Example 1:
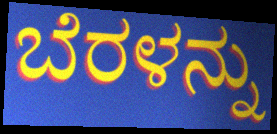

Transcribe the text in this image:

ಬೆರಳನ್ನು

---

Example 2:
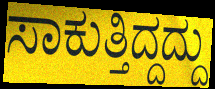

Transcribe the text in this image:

ಸಾಕುತ್ತಿದ್ದದ್ದು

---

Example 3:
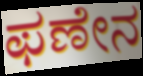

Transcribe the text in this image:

ಫಣೇನ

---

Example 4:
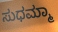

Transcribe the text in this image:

ಸುಧಮ್ಮಾ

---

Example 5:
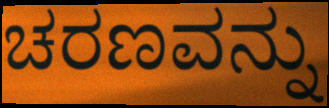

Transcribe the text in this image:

ಚರಣವನ್ನು